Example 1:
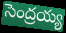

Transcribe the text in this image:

సెంద్రయ్య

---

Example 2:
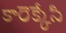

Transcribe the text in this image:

కారెక్కేసి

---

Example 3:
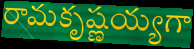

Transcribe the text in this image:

రామకృష్ణయ్యగా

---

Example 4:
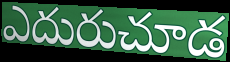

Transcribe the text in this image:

ఎదురుచూడ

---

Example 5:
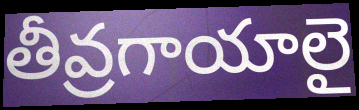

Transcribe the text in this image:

తీవ్రగాయాలై